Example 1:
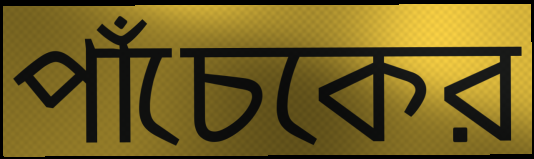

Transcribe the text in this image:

পাঁচেকের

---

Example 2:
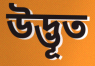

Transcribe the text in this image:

উদ্ভূত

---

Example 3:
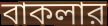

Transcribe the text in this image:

বাকলার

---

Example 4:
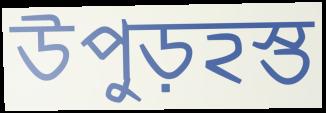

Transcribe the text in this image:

উপুড়হস্ত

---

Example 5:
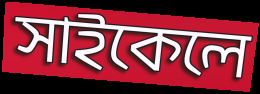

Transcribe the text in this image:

সাইকেলে